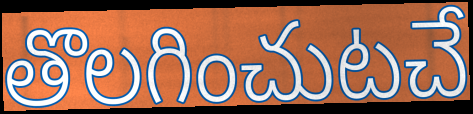
తొలగించుటచే